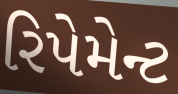
રિપેમેન્ટ